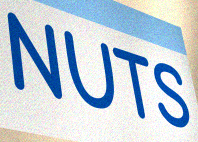
NUTS